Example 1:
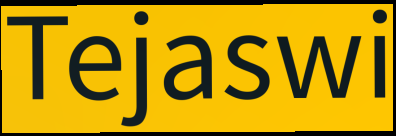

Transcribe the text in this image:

Tejaswi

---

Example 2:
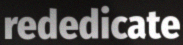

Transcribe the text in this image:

rededicate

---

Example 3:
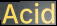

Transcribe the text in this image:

Acid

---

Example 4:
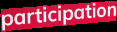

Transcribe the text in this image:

participation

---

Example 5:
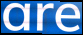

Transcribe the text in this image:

are